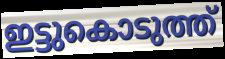
ഇട്ടുകൊടുത്ത്